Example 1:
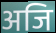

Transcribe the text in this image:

अजि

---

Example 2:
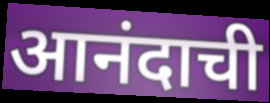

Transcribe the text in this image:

आनंदाची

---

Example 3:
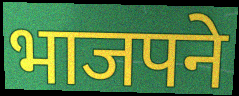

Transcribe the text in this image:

भाजपने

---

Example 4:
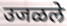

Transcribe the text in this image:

उजळले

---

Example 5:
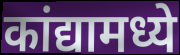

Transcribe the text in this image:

कांद्यामध्ये